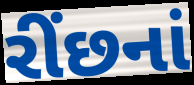
રીંછનાં